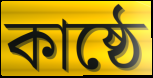
কাষ্ঠে